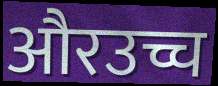
औरउच्च